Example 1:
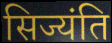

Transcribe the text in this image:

सिज्यंति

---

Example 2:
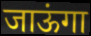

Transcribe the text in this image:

जाऊंगा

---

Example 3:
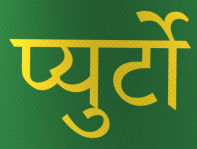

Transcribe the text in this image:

प्युर्टो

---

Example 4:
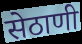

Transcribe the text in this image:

सेठाणी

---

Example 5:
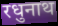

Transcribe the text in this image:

रधुनाथ